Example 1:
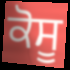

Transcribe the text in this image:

ਕੋਸੂ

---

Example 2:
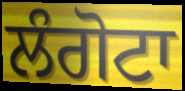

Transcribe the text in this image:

ਲੰਗੋਟਾ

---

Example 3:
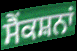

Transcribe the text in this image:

ਸੈਂਕਸ਼ਨਾਂ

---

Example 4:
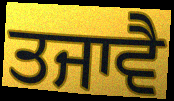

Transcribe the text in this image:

ਤਜਾਵੈ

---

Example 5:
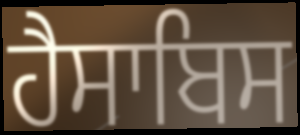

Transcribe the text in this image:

ਹੈਸਾਬਿਸ